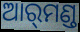
ଆର୍‌ମଣ୍ଡ